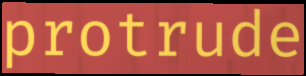
protrude